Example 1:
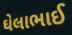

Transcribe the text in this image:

ઘેલાભાઈ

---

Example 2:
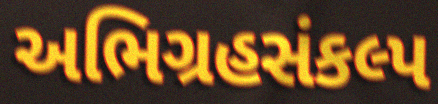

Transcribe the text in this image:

અભિગ્રહસંકલ્પ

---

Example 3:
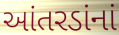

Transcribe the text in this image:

આંતરડાંનાં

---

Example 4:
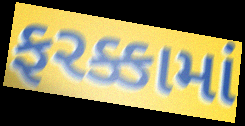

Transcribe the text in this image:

ફરક્કામાં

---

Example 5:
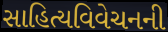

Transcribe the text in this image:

સાહિત્યવિવેચનની